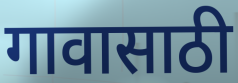
गावासाठी